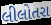
લીલોતરા